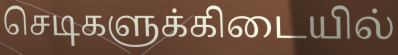
செடிகளுக்கிடையில்